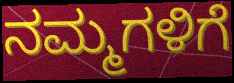
ನಮ್ಮಗಳಿಗೆ